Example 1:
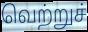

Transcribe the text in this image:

வெற்றுச்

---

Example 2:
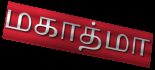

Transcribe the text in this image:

மகாத்மா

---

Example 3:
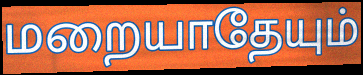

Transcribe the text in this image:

மறையாதேயும்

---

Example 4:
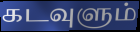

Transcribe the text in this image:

கடவுளும்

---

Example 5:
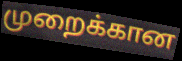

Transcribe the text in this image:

முறைக்கான